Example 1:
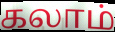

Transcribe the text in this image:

கலாம்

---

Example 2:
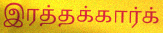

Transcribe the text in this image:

இரத்தக்கார்க்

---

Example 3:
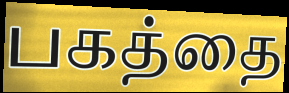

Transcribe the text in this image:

பகத்தை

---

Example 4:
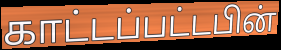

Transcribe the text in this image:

காட்டப்பட்டபின்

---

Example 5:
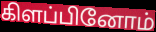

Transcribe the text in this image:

கிளப்பினோம்